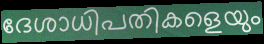
ദേശാധിപതികളെയും